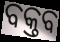
ବକ୍ତବ